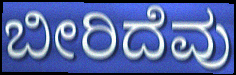
ಬೀರಿದೆವು